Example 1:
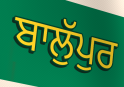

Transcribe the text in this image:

ਬਾਲੁੱਪੁਰ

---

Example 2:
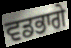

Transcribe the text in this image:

ਵਡਭਾਗੇ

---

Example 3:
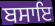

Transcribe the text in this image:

ਬਸਾਇ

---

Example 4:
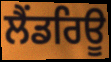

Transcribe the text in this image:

ਲੈਂਡਰਿਊ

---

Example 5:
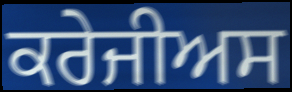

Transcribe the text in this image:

ਕਰੇਜੀਅਸ